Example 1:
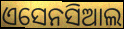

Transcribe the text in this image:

ଏସେନସିଆଲ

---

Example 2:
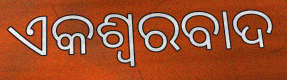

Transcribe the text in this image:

ଏକଶ୍ୱରବାଦ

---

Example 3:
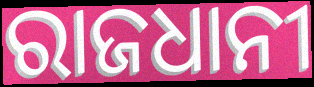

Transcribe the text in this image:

ରାଜଧାନୀ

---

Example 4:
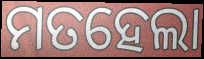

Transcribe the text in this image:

ମତହେଲା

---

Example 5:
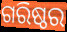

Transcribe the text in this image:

ଗରିଷ୍ଠର